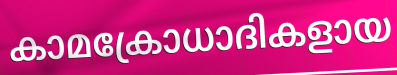
കാമക്രോധാദികളായ